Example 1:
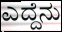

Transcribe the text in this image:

ಎದ್ದೆನು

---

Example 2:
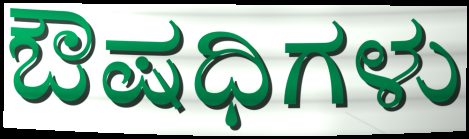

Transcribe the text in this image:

ಔಷಧಿಗಳು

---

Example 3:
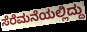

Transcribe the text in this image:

ಸೆರೆಮನೆಯಲ್ಲಿದ್ದು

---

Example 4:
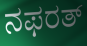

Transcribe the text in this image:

ನಫರತ್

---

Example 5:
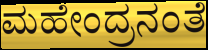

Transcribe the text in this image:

ಮಹೇಂದ್ರನಂತೆ